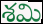
శమి